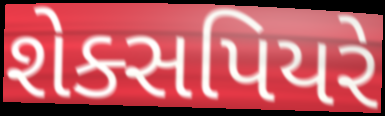
શેક્સપિયરે